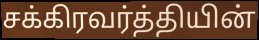
சக்கிரவர்த்தியின்